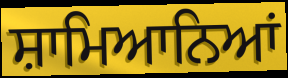
ਸ਼ਾਮਿਆਨਿਆਂ